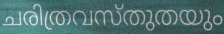
ചരിത്രവസ്തുതയും